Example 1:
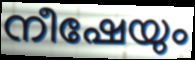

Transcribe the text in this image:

നീഷേയും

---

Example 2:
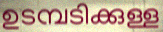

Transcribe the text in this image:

ഉടമ്പടിക്കുള്ള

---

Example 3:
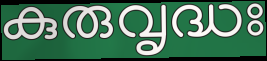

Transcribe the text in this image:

കുരുവൃദ്ധഃ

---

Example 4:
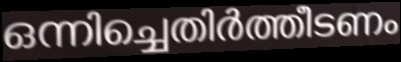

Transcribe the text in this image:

ഒന്നിച്ചെതിർത്തീടണം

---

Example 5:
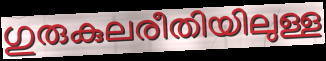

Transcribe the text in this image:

ഗുരുകുലരീതിയിലുള്ള